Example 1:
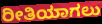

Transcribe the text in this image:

ರೀತಿಯಾಗಲು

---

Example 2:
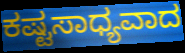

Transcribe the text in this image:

ಕಷ್ಟಸಾಧ್ಯವಾದ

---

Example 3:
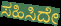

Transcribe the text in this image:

ಸಹಿಸಿದೇ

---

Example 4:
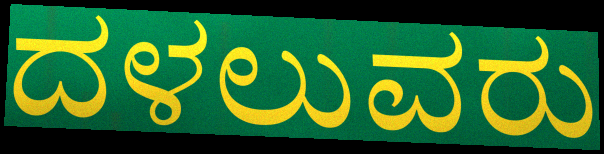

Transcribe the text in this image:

ದಳಲುವರು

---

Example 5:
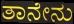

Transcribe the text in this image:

ತಾನೇನು